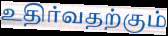
உதிர்வதற்கும்